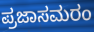
ಪ್ರಜಾಸಮರಂ